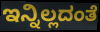
ಇನ್ನಿಲ್ಲದಂತೆ